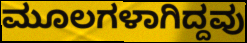
ಮೂಲಗಳಾಗಿದ್ದವು